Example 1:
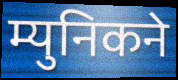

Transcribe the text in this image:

म्युनिकने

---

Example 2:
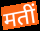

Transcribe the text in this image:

मतीं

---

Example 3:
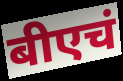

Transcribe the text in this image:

बीएचं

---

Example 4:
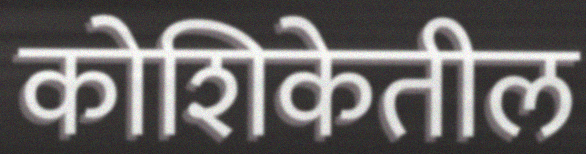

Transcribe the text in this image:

कोशिकेतील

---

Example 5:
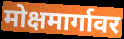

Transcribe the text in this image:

मोक्षमार्गावर